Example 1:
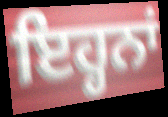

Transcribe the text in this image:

ਇਹ੍ਹਨਾਂ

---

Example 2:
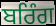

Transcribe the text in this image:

ਬਰਿੰਗ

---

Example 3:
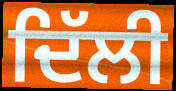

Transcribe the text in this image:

ਦਿੱਲੀ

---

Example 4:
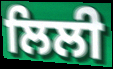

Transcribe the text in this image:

ਲਿਲੀ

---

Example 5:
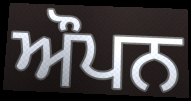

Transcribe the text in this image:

ਔਪਨ